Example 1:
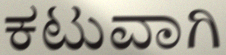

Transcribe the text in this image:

ಕಟುವಾಗಿ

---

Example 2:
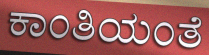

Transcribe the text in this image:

ಕಾಂತಿಯಂತೆ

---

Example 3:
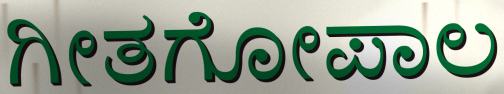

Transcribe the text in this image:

ಗೀತಗೋಪಾಲ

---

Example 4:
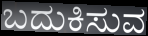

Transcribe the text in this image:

ಬದುಕಿಸುವ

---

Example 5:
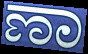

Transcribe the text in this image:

ಣಾ